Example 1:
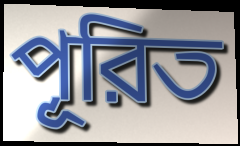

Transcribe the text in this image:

পূরিত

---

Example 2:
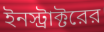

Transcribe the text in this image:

ইনস্ট্রাক্টরের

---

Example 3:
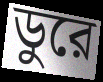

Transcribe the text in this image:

ডুরে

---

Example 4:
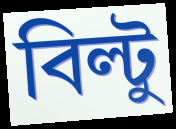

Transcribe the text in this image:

বিল্টু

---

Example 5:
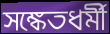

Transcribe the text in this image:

সঙ্কেতধর্মী